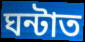
ঘন্টাত